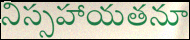
నిస్సహాయతనూ